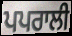
ਪਪਰਾਲੀ